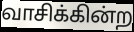
வாசிக்கின்ற